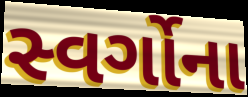
સ્વર્ગોના